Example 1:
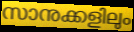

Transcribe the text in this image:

സാനുക്കളിലും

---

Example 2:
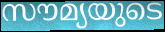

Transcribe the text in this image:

സൗമ്യയുടെ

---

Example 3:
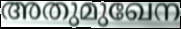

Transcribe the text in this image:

അതുമുഖേന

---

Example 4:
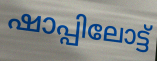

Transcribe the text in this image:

ഷാപ്പിലോട്ട്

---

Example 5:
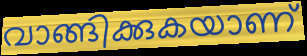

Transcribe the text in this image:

വാങ്ങിക്കുകയാണ്